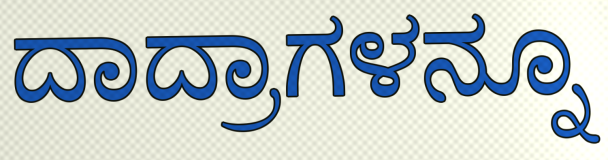
ದಾದ್ರಾಗಳನ್ನೂ